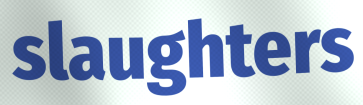
slaughters